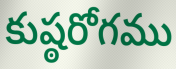
కుష్ఠరోగము